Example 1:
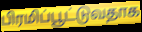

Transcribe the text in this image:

பிரமிப்பூட்டுவதாக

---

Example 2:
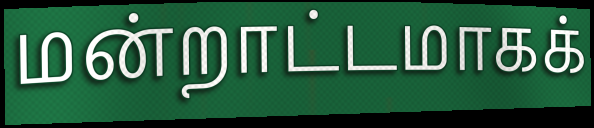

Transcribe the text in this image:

மன்றாட்டமாகக்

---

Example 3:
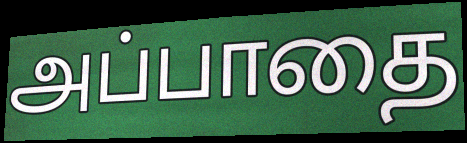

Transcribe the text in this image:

அப்பாதை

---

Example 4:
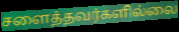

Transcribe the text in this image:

சளைத்தவர்களில்லை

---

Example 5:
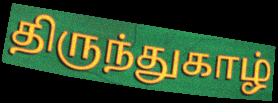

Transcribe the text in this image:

திருந்துகாழ்